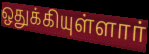
ஒதுக்கியுள்ளார்